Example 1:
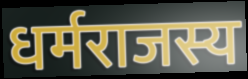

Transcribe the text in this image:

धर्मराजस्य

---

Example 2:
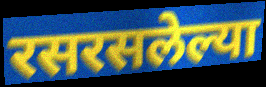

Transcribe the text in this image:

रसरसलेल्या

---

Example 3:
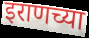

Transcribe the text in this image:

इराणच्या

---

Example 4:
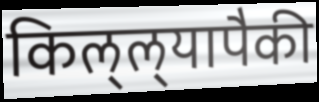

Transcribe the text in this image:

किल्ल्यापैकी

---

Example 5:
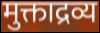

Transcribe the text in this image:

मुक्ताद्रव्य